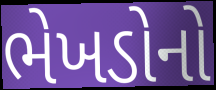
ભેખડોનો